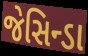
જેસિન્ડા